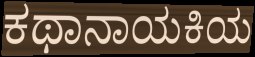
ಕಥಾನಾಯಕಿಯ